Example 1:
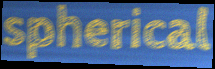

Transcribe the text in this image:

spherical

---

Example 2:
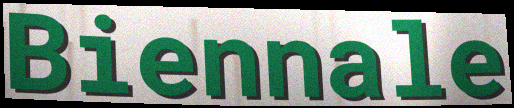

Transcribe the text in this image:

Biennale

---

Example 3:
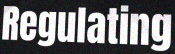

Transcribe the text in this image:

Regulating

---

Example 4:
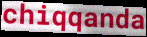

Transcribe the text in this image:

chiqqanda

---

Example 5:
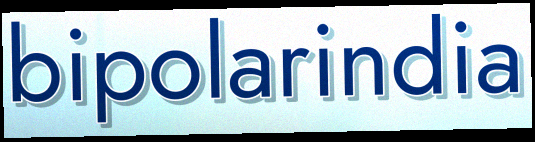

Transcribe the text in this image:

bipolarindia